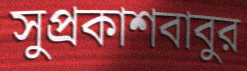
সুপ্রকাশবাবুর